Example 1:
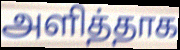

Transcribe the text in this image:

அளித்தாக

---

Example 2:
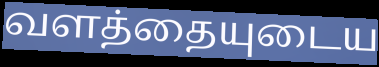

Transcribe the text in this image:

வளத்தையுடைய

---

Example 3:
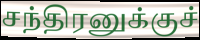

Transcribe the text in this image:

சந்திரனுக்குச்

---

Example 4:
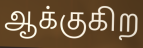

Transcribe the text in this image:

ஆக்குகிற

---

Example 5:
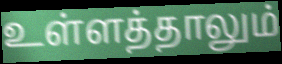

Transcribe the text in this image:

உள்ளத்தாலும்